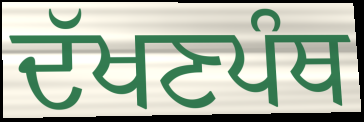
ਦੱਖਣਪੰਥ